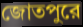
জোতপুরে